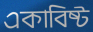
একাবিষ্ট